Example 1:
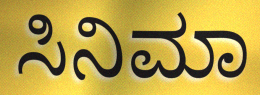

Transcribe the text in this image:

ಸಿನಿಮಾ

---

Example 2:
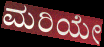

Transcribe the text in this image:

ಮರಿಯೇ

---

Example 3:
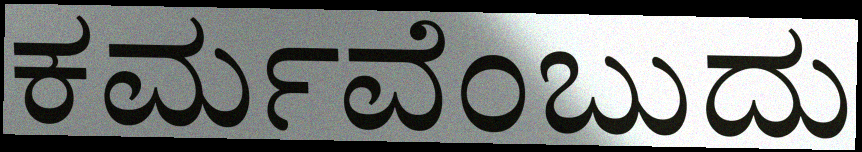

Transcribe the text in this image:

ಕರ್ಮವೆಂಬುದು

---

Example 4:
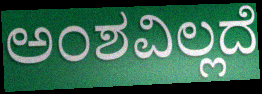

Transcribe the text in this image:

ಅಂಶವಿಲ್ಲದೆ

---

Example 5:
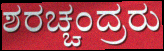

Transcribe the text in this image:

ಶರಚ್ಚಂದ್ರರು